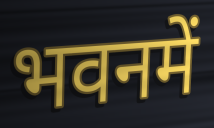
भवनमें